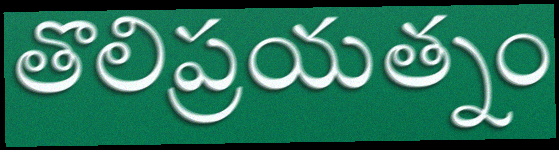
తొలిప్రయత్నం